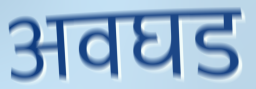
अवघड